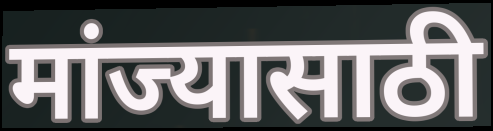
मांज्यासाठी